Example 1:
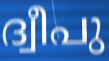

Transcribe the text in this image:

ദ്വീപു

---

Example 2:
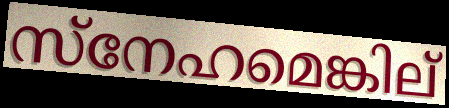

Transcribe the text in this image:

സ്നേഹമെങ്കില്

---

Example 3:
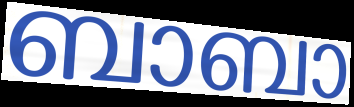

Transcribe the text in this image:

ബാബാ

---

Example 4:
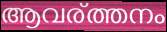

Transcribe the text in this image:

ആവര്ത്തനം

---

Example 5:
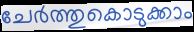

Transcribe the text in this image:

ചേർത്തുകൊടുക്കാം